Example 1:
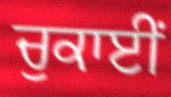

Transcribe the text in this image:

ਚੁਕਾਈਂ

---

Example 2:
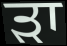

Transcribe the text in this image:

ੜਾ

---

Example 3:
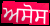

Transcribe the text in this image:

ਅਸੋਸ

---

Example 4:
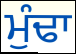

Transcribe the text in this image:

ਮੁੰਢਾ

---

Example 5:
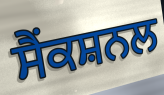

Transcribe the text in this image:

ਸੈਂਕਸ਼ਨਲ